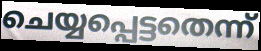
ചെയ്യപ്പെട്ടതെന്ന്